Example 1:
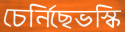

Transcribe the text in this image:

চেৰ্নিছেভস্কি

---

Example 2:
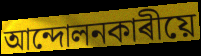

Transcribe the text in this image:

আন্দোলনকাৰীয়ে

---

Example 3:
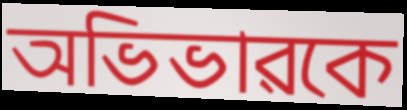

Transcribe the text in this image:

অভিভাৱকে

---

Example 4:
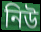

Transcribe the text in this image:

নিউ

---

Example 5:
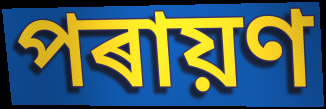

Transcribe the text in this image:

পৰায়ণ